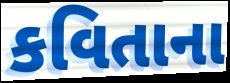
કવિતાના